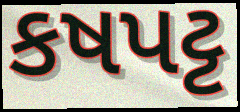
કષપટ્ટ